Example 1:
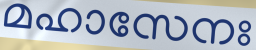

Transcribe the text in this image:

മഹാസേനഃ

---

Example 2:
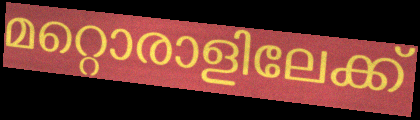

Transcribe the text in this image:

മറ്റൊരാളിലേക്ക്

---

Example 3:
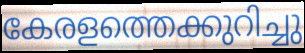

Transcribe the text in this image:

കേരളത്തെക്കുറിച്ചു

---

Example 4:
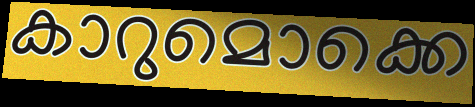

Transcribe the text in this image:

കാറുമൊക്കെ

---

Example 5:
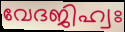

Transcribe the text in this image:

വേദജിഹ്വഃ